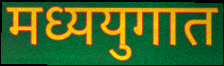
मध्ययुगात